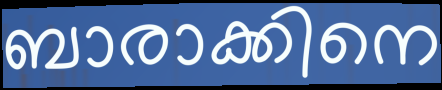
ബാരാക്കിനെ